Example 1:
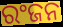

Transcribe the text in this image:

ରଂଜନ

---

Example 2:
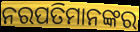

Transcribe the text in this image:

ନରପତିମାନଙ୍କର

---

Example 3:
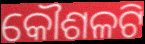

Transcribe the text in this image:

କୌଶଳଟି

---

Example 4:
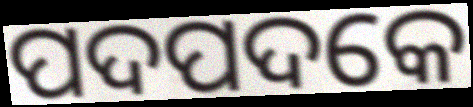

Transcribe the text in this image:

ପଦପଦକେ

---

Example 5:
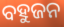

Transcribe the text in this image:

ବହୁଜନ